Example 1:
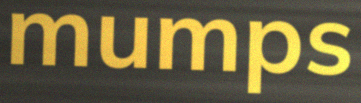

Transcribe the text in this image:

mumps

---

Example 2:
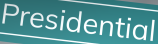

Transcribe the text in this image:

Presidential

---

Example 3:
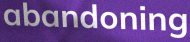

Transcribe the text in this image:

abandoning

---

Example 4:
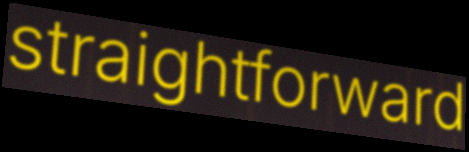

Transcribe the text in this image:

straightforward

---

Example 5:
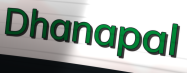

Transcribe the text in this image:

Dhanapal